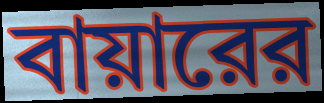
বায়ারের